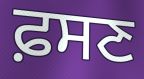
ਫ਼ਸਣ